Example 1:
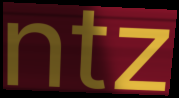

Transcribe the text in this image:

ntz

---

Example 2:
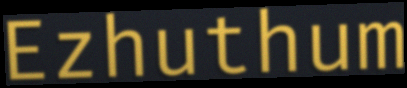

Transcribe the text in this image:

Ezhuthum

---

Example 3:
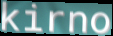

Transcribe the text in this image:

kirno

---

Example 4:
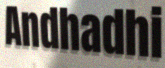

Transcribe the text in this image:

Andhadhi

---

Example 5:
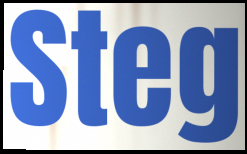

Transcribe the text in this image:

Steg